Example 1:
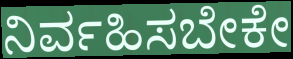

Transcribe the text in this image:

ನಿರ್ವಹಿಸಬೇಕೇ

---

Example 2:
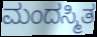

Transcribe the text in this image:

ಮಂದಸ್ಮಿತ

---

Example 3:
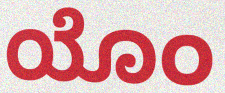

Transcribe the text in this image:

ಯೊಂ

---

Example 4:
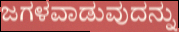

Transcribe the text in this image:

ಜಗಳವಾಡುವುದನ್ನು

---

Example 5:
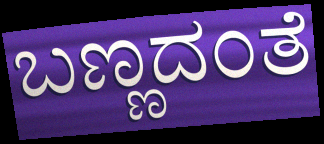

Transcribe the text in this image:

ಬಣ್ಣದಂತೆ